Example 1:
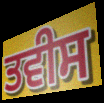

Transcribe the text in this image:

ਤਵੀਸ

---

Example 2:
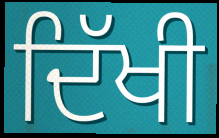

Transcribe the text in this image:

ਦਿੱਖੀ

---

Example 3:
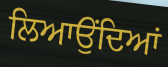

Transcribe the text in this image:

ਲਿਆਉਂਦਿਆਂ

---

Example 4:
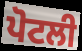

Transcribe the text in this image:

ਪੋਟਲੀ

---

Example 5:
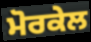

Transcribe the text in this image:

ਮੋਰਕੇਲ